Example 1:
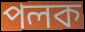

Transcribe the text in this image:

পলক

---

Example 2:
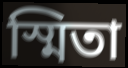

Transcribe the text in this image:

স্মিতা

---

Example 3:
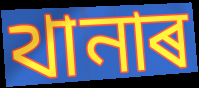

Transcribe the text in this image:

থানাৰ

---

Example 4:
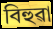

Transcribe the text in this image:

বিহুৱা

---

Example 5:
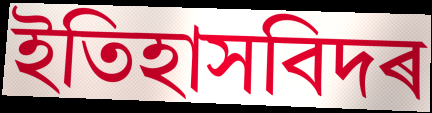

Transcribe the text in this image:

ইতিহাসবিদৰ